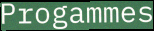
Progammes